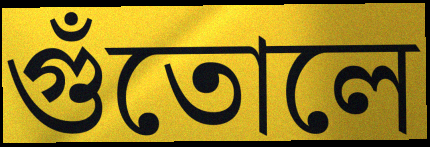
গুঁতোলে